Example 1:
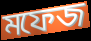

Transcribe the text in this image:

মফেজ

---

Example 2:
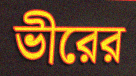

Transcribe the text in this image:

ভীরের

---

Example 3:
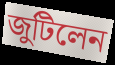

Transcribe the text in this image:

জুটিলেন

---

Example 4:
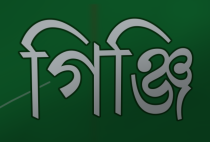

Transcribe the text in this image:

গিঞ্জি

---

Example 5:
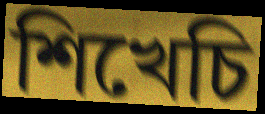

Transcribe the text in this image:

শিখেচি